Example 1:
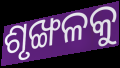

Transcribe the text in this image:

ଶୃଙ୍ଖଳକୁ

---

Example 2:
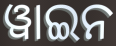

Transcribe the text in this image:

ୱାଇନ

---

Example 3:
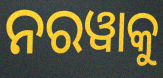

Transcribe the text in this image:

ନରୱାକୁ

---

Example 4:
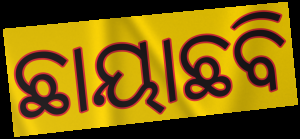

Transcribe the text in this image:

ଛାୟାଛବି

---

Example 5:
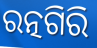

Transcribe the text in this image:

ରତ୍ନଗିରି